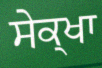
ਸੇਕ੍ਖਾ